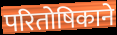
परितोषिकाने